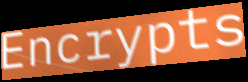
Encrypts